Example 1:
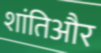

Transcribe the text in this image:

शांतिऔर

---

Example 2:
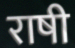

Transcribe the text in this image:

राषी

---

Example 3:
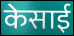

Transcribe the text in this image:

केसाई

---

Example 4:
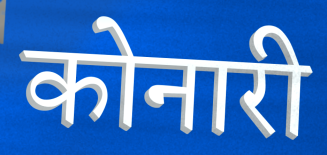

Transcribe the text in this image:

कोनारी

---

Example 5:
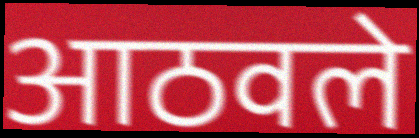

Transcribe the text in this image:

आठवले